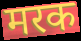
मरक